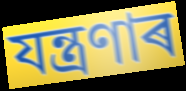
যন্ত্ৰণাৰ